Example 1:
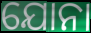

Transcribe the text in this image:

ଯୋନା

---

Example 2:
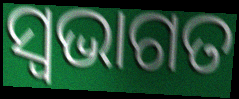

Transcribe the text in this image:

ସ୍ଵଭାଗତ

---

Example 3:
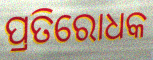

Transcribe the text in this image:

ପ୍ରତିରୋଧକ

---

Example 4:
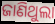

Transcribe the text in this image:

ଜାଣିଥୁଲା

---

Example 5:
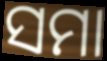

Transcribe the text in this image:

ସମା